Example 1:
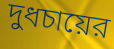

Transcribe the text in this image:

দুধচায়ের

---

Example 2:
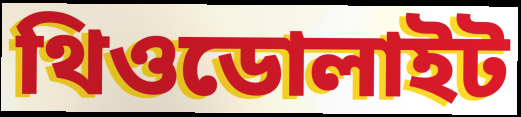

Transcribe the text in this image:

থিওডোলাইট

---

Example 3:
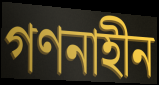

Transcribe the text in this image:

গণনাহীন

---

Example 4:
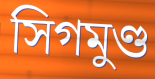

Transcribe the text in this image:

সিগমুণ্ড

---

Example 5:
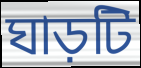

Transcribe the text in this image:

ঘাড়টি